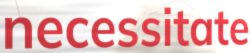
necessitate